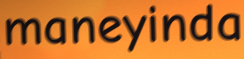
maneyinda